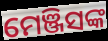
ମେଞ୍ଜିସଙ୍କ